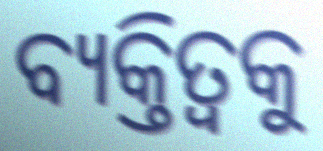
ବ୍ୟକ୍ତିତ୍ୱକୁ